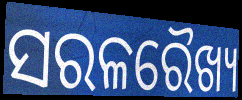
ସରଳରୈଖ୍ୟ